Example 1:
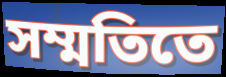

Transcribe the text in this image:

সম্মতিতে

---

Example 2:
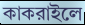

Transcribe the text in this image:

কাকরাইলে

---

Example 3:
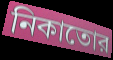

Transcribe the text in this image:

নিকাতোর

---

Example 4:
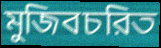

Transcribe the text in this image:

মুজিবচরিত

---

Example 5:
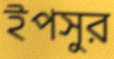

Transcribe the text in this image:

ইপসুর